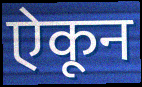
ऐकून